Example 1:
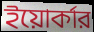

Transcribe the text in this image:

ইয়োর্কার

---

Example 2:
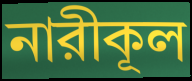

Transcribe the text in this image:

নারীকূল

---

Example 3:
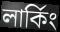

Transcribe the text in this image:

লার্কিং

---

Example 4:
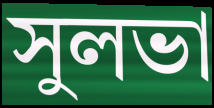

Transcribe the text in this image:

সুলভা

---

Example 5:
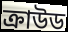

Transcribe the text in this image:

ক্রাউড